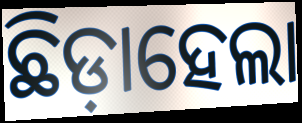
ଛିଡ଼ାହେଲା